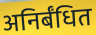
अनिर्बंधित